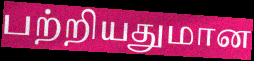
பற்றியதுமான